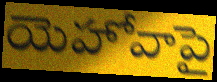
యెహోవాపై